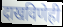
दाखविणेही